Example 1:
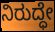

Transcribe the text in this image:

ನಿರುದ್ಧೇ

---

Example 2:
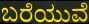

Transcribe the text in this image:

ಬರೆಯುವೆ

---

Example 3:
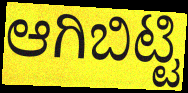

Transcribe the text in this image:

ಆಗಿಬಿಟ್ಟಿ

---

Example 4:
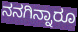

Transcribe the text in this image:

ನನಗಿನ್ನಾರೂ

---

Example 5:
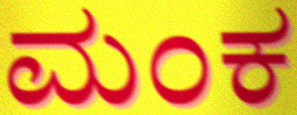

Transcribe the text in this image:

ಮಂಕ